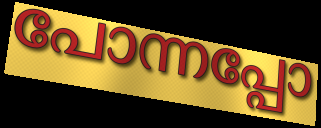
പോന്നപ്പോ